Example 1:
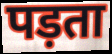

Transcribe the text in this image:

पड़ता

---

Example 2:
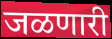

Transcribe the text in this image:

जळणारी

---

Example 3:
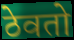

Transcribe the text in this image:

ठेवतो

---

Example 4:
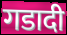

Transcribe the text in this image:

गडादी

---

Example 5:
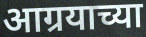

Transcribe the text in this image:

आग्रयाच्या